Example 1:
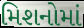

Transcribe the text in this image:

મિશનોમાં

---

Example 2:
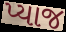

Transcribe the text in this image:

પ્યાજ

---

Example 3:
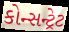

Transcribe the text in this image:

કોન્સન્ટ્રેટ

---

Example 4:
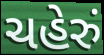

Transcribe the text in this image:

ચહેરું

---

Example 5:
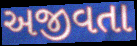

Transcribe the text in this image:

અજીવતા